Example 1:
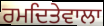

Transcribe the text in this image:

ਰਮਦਿਤੇਵਾਲਾ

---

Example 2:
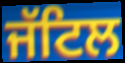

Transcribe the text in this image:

ਜੱਟਿਲ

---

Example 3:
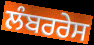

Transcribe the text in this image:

ਲੰਬਰਰੇਸ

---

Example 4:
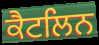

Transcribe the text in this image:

ਕੈਟਲਿਨ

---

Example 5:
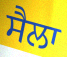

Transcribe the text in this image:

ਸੈਲਾ